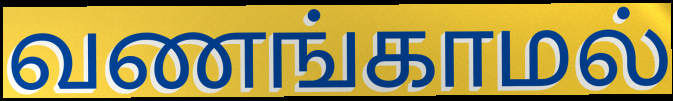
வணங்காமல்